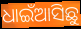
ଧାଇଁଆସିଛୁ